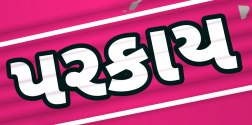
પરકાય